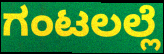
ಗಂಟಲಲ್ಲೆ